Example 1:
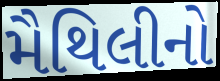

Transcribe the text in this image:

મૈથિલીનો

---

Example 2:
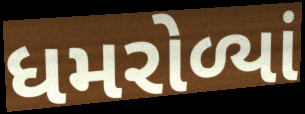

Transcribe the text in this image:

ધમરોળ્યાં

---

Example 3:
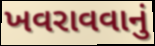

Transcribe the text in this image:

ખવરાવવાનું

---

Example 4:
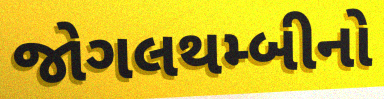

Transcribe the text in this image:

જોગલથમ્બીનો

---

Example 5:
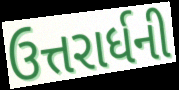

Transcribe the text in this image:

ઉત્તરાર્ધની